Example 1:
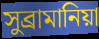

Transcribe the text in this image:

সুব্রামানিয়া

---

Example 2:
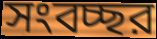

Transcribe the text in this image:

সংবচ্ছর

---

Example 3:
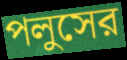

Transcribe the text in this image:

পলুসের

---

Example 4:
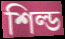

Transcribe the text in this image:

শিল্ড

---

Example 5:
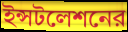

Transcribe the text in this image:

ইন্সটলেশনের